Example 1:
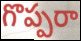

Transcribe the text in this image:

గొప్పరా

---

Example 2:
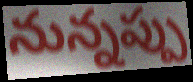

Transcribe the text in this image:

నున్నప్పు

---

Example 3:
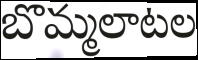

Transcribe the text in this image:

బొమ్మలాటల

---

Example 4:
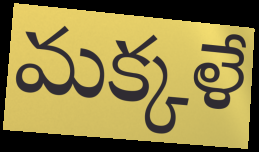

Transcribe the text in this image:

మక్కళే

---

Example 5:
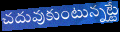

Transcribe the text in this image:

చదువుకుంటున్నట్టే